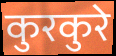
कुरकुरे